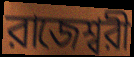
রাজেশ্বরী